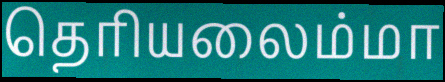
தெரியலைம்மா